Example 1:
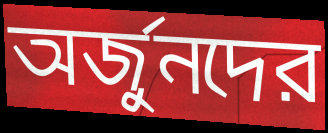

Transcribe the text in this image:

অর্জুনদের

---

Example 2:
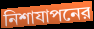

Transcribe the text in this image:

নিশাযাপনের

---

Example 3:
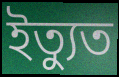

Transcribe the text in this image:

ইত্যুত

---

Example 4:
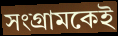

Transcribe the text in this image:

সংগ্রামকেই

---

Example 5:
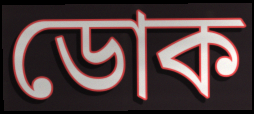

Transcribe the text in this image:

ডোক